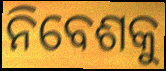
ନିବେଶକୁ